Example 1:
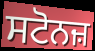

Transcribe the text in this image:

ਸਟੋਨਜ਼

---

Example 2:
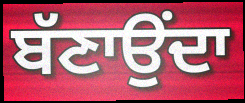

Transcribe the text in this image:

ਬੱਣਾਉਂਦਾ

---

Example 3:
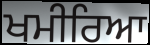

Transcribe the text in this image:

ਖਮੀਰਿਆ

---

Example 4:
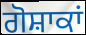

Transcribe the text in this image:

ਗੋਸ਼ਾਕਾਂ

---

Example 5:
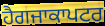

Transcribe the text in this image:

ਹੈਗਜਾਕਾਪਟਰ